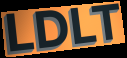
LDLT